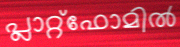
പ്ലാറ്റ്ഫോമിൽ